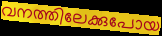
വനത്തിലേക്കുപോയ